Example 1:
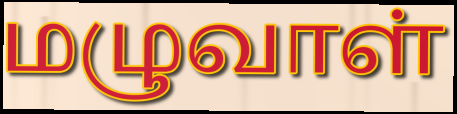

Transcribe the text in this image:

மழுவாள்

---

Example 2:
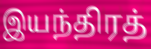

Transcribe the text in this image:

இயந்திரத்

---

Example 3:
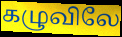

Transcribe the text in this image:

கழுவிலே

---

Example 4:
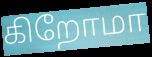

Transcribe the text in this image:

கிறோமா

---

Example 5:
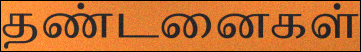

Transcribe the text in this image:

தண்டனைகள்